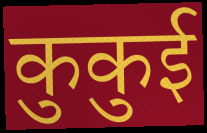
कुकुई